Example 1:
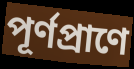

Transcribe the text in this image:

পূর্ণপ্রাণে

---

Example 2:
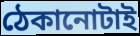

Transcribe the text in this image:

ঠেকানোটাই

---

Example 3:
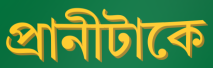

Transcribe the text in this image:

প্রানীটাকে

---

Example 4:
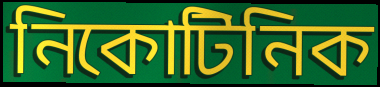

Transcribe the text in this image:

নিকোটিনিক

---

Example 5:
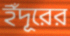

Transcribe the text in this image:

ইঁদূরের